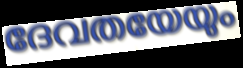
ദേവതയേയും